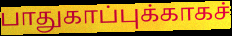
பாதுகாப்புக்காகச்